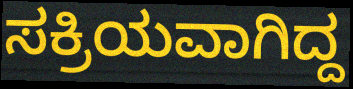
ಸಕ್ರಿಯವಾಗಿದ್ದ